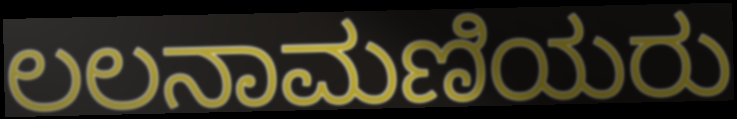
ಲಲನಾಮಣಿಯರು